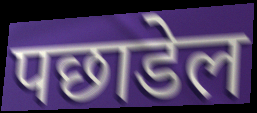
पछाडेल